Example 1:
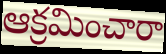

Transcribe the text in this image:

ఆక్రమించారా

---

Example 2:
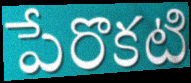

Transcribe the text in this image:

పేరొకటి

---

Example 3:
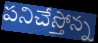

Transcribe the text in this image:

పనిచేస్తోన్న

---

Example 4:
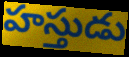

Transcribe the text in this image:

హస్తుడు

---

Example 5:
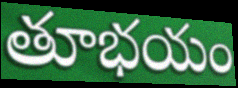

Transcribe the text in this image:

తూభయం